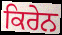
ਕਿਰੇਨ